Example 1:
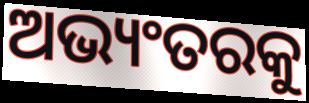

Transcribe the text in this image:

ଅଭ୍ୟଂତରକୁ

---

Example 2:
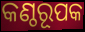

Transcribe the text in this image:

କଣ୍ଠରୂପକ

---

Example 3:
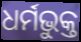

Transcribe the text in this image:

ଧର୍ମଭୁକ୍ତ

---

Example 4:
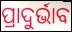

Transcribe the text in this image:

ପ୍ରାଦୁର୍ଭାବ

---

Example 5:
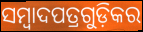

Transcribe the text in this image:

ସମ୍ୱାଦପତ୍ରଗୁଡ଼ିକର